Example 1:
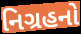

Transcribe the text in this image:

નિગ્રહનો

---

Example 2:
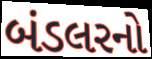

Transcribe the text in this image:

બંડલરનો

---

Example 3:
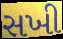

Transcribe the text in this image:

સખી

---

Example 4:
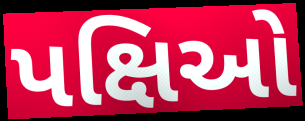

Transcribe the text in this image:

પક્ષિઓ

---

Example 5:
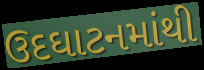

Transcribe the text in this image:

ઉદઘાટનમાંથી